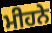
ਮੀਹਨੇ